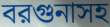
বরগুনাসহ